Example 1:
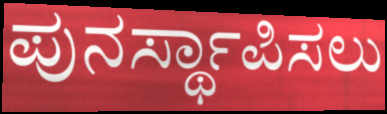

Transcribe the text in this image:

ಪುನರ್ಸ್ಥಾಪಿಸಲು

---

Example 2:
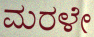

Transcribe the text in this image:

ಮರಳೇ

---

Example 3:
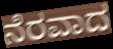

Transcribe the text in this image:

ನೆರವಾದ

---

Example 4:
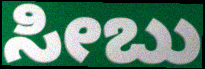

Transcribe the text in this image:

ಸೀಬು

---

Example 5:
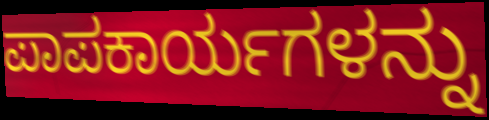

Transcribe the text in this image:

ಪಾಪಕಾರ್ಯಗಳನ್ನು